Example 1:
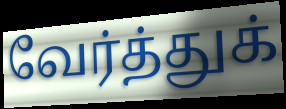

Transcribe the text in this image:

வேர்த்துக்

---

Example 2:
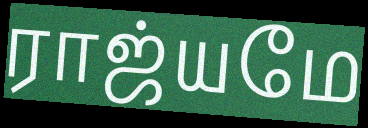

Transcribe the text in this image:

ராஜ்யமே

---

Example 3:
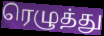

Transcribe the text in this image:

ரெழுத்து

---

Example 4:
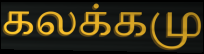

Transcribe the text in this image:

கலக்கமு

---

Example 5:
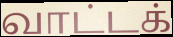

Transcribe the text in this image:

வாட்டக்